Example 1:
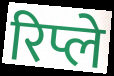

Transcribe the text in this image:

रिप्ले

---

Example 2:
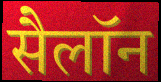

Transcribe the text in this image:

सैलॉन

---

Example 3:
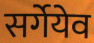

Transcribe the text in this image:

सर्गेयेव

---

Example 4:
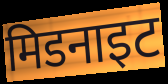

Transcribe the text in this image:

मिडनाइट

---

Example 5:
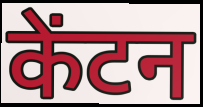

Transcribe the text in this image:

केंटन